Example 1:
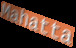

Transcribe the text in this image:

Mahatta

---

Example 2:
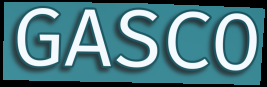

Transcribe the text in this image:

GASCO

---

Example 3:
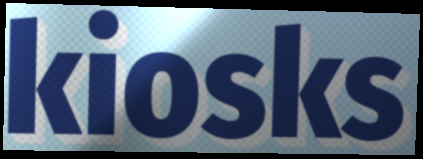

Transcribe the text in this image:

kiosks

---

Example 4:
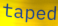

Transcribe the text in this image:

taped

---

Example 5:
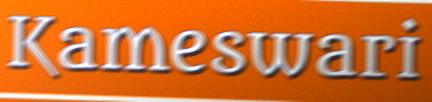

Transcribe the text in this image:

Kameswari